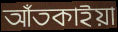
আঁতকাইয়া